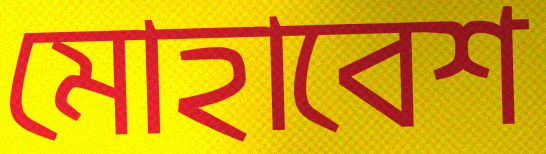
মোহাবেশ